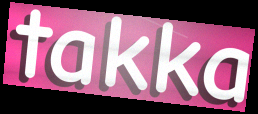
takka